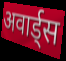
अवार्ड्स